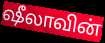
ஷீலாவின்